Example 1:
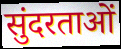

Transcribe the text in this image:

सुंदरताओं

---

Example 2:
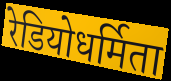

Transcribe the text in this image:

रेडियोधर्मिता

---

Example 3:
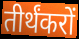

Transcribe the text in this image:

तीर्थंकरों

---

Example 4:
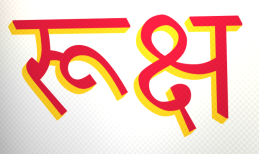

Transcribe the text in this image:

रूक्ष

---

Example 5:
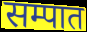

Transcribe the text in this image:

सम्पात